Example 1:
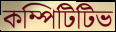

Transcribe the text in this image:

কম্পিটিটিভ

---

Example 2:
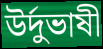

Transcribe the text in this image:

উর্দুভাষী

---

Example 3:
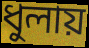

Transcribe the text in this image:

ধুলায়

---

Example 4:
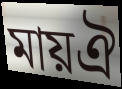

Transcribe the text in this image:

মায়ঐ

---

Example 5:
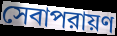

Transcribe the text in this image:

সেবাপরায়ণ